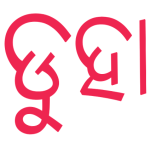
ଡୁହା